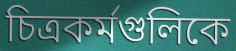
চিত্রকর্মগুলিকে